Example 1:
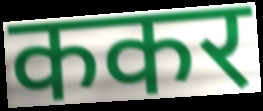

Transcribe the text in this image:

ककर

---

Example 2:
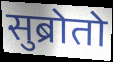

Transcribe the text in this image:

सुब्रोतो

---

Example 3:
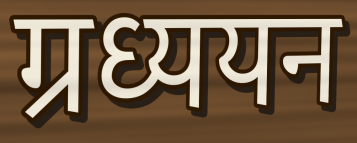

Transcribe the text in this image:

ग्रध्ययन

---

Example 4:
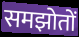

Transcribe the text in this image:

समझोतों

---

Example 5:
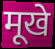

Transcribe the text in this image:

मूखे